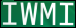
IWMI